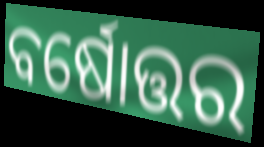
ବର୍ଷୋତ୍ତର